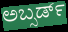
ಅಬ್ಸರ್ಡ್